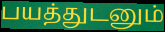
பயத்துடனும்